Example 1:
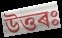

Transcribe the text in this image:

উত্তৰঃ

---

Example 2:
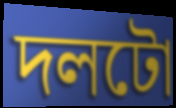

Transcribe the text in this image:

দলটো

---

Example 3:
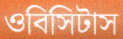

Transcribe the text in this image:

ওবিসিটাস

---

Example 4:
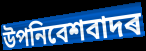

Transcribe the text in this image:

উপনিবেশবাদৰ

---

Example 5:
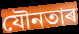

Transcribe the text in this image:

যৌনতাৰ